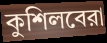
কুশিলবেরা